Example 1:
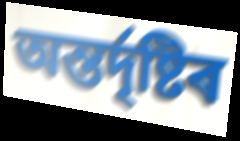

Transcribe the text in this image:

অন্তৰ্দৃষ্টিৰ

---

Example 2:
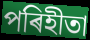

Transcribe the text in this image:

পৰিহীতা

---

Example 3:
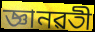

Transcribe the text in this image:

জ্ঞানৱতী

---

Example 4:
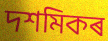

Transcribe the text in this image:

দশমিকৰ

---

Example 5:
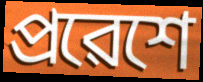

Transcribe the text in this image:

প্ৰৱেশে